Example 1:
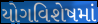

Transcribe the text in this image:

યોગવિશેષમાં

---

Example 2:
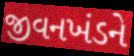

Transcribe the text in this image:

જીવનખંડને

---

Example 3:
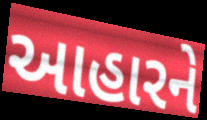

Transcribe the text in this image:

આહારને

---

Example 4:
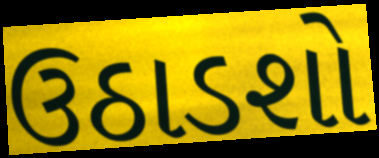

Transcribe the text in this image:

ઉઠાડશો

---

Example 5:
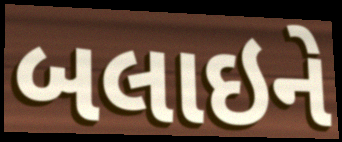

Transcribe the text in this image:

બલાઇને